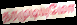
தரமுடியுமோ